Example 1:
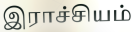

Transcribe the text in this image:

இராச்சியம்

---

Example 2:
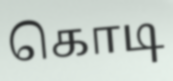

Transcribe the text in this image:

கொடி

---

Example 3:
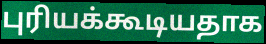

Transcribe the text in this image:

புரியக்கூடியதாக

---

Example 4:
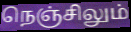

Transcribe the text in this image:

நெஞ்சிலும்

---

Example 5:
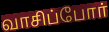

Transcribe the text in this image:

வாசிப்போர்